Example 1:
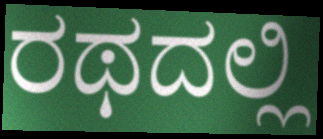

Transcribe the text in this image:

ರಥದಲ್ಲಿ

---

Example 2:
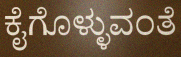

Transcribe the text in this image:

ಕೈಗೊಳ್ಳುವಂತೆ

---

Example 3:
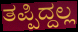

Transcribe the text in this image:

ತಪ್ಪಿದ್ದಲ್ಲ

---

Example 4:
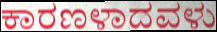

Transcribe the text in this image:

ಕಾರಣಳಾದವಳು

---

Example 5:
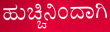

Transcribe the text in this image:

ಹುಚ್ಚಿನಿಂದಾಗಿ